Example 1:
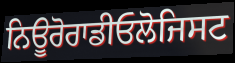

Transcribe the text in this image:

ਨਿਊਰੋਰਾਡੀਓਲੋਜਿਸਟ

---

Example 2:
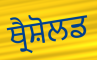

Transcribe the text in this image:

ਥ੍ਰੈਸ਼ੋਲਡ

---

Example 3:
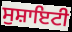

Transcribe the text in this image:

ਸੁਸ਼ਾਇਟੀ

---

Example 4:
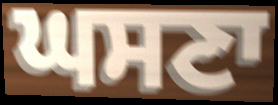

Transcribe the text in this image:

ਘਸਣਾ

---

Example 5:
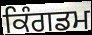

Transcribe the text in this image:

ਕਿੰਗਡਮ